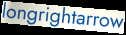
longrightarrow